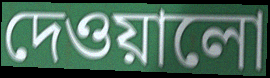
দেওয়ালো